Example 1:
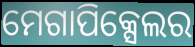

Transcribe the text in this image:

ମେଗାପିକ୍ସେଲର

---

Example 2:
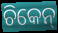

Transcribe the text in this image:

ଚିକେନ୍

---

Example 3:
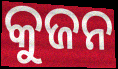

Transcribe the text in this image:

କୁଜନ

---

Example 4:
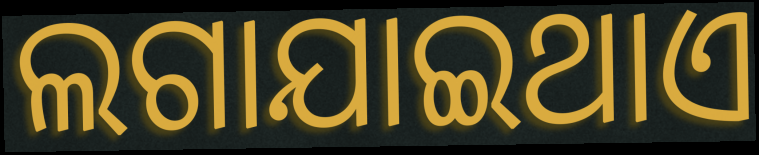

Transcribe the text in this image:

ଲଗାଯାଇଥାଏ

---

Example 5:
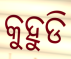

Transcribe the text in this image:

କୁହୁଡି